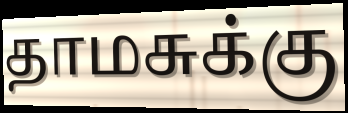
தாமசுக்கு